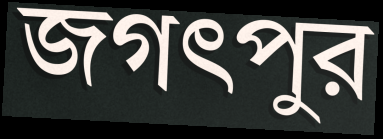
জগৎপুর